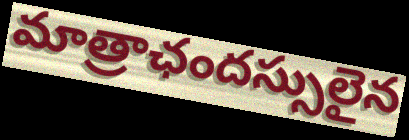
మాత్రాఛందస్సులైన